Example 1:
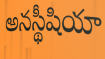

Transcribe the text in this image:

అనస్థీషియా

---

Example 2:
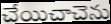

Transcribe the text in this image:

చేయిచాచెను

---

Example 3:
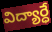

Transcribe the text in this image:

విద్యార్ధే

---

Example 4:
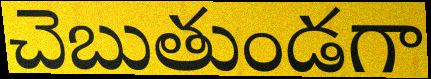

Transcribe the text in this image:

చెబుతుండగా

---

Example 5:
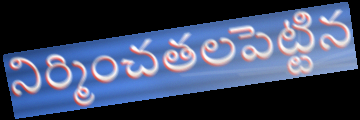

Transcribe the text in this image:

నిర్మించతలపెట్టిన